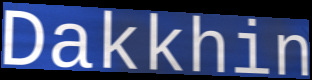
Dakkhin